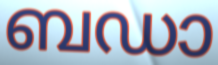
ബഡാ